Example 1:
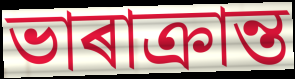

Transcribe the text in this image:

ভাৰাক্ৰান্ত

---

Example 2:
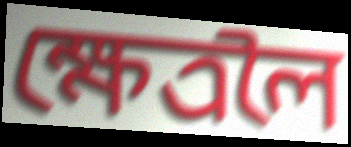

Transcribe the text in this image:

ক্ষেত্ৰলৈ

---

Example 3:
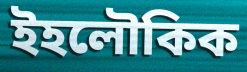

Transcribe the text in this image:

ইহলৌকিক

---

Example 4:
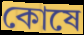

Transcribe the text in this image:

কোষে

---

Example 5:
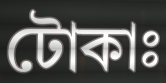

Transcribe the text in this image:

টোকাঃ